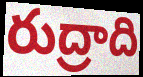
రుద్రాది